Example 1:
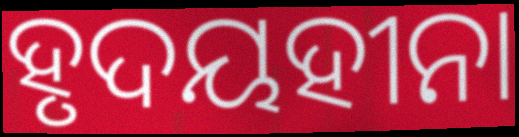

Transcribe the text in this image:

ହୃଦୟହୀନା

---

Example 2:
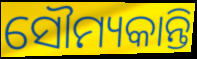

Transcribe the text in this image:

ସୌମ୍ୟକାନ୍ତି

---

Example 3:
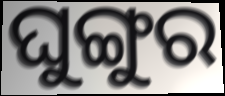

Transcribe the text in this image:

ଘୁଙ୍ଗୁର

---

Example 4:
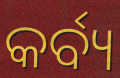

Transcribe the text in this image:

କର୍ବ୍ୟ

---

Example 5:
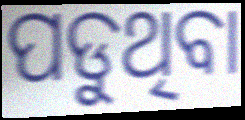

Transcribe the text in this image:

ପଡୁଥିବା